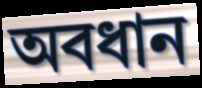
অবধান